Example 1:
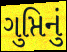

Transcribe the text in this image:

ગુપ્તિનું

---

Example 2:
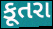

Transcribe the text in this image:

કૂતરા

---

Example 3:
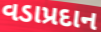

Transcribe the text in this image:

વડાપ્રદાન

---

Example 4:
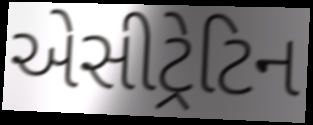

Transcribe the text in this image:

એસીટ્રેટિન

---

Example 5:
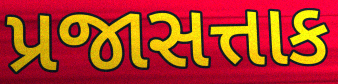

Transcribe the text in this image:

પ્રજાસત્તાક